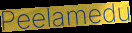
Peelamedu